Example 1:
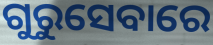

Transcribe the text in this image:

ଗୁରୁସେବାରେ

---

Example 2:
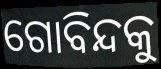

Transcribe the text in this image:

ଗୋବିନ୍ଦକୁ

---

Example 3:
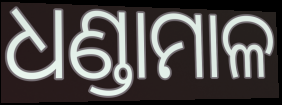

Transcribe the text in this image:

ଧଣ୍ଡାମାଳ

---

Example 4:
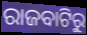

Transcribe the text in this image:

ରାଜବାଟିରୁ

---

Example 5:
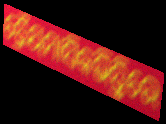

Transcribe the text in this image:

ତ୍ରୈୟମାସିକଭିତ୍ତିରେ